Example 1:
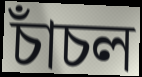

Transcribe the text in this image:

চাঁচল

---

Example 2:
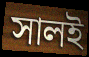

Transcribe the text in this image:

সালই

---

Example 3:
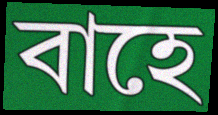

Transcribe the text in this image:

বাহে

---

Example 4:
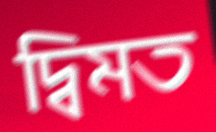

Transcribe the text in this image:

দ্বিমত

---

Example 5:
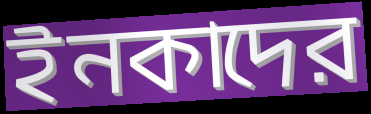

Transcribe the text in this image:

ইনকাদের